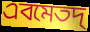
এবমেতদ্